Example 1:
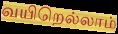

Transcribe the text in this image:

வயிறெல்லாம்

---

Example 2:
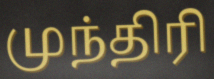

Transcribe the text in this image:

முந்திரி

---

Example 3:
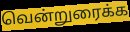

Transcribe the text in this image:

வென்றுரைக்க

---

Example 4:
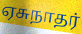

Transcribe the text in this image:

ஏசுநாதர்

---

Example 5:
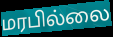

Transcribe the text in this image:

மரபில்லை